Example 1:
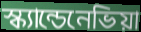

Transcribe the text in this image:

স্ক্যান্ডেনেভিয়া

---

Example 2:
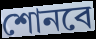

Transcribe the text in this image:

শোনবে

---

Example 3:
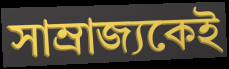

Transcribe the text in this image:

সাম্রাজ্যকেই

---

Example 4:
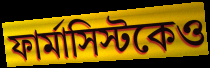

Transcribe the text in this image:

ফার্মাসিস্টকেও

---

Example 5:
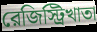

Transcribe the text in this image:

রেজিস্ট্রিখাতা